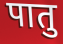
पातु